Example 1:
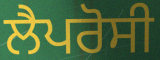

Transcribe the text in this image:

ਲੈਪਰੋਸੀ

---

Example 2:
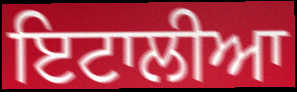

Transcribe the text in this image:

ਇਟਾਲੀਆ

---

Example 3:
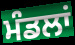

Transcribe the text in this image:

ਮੰਡਲਾਂ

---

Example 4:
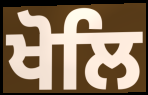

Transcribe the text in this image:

ਖੋਲਿ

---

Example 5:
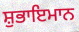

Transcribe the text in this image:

ਸ਼ੁਭਾਇਮਾਨ